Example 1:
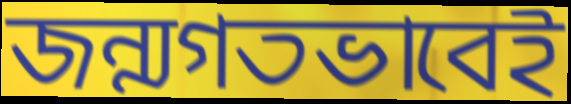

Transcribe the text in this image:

জন্মগতভাবেই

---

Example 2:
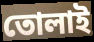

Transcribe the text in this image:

তোলাই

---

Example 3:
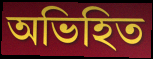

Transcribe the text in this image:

অভিহিত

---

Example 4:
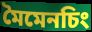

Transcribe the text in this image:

মৈমেনচিং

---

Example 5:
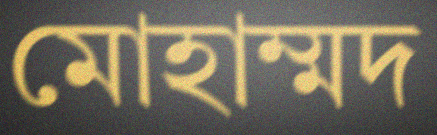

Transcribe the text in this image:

মোহাম্মদ